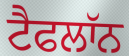
ਟੈਫਲਾੱਨ